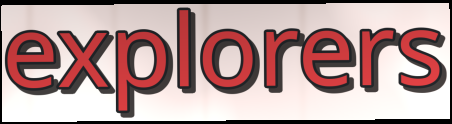
explorers